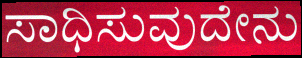
ಸಾಧಿಸುವುದೇನು